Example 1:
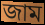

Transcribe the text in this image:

জাম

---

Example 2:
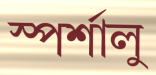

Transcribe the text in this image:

স্পর্শালু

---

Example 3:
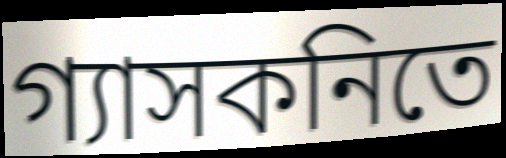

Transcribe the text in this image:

গ্যাসকনিতে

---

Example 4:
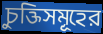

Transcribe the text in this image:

চুক্তিসমূহের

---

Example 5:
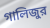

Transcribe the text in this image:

গালিজুর